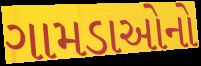
ગામડાઓનો